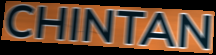
CHINTAN